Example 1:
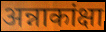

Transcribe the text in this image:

अन्नाकांक्षा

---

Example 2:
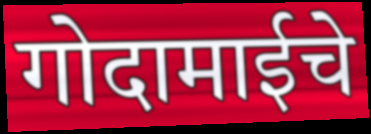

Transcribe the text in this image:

गोदामाईचे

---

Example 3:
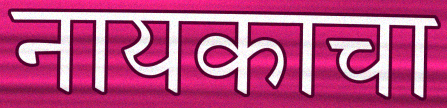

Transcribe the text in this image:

नायकाचा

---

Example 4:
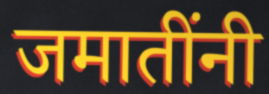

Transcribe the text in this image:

जमातींनी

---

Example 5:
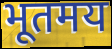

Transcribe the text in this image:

भूतमय